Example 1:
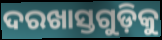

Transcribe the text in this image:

ଦରଖାସ୍ତଗୁଡ଼ିକୁ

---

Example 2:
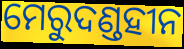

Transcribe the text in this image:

ମେରୁଦଣ୍ଡହୀନ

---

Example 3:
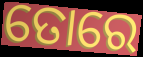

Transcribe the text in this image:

ତୋରେ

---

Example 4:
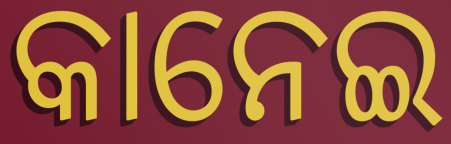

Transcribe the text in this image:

କାନେଇ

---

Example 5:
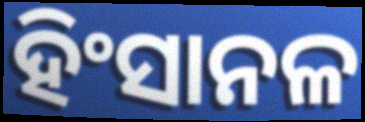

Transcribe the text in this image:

ହିଂସାନଳ